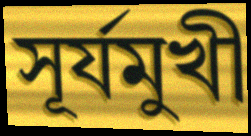
সূর্যমুখী